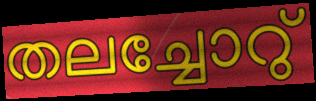
തലച്ചോറു്